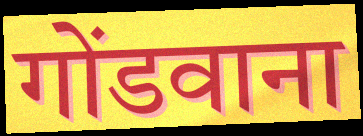
गोंडवाना